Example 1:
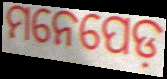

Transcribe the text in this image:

ମନେପେଡ଼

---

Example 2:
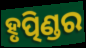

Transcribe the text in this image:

ହୃତ୍ପିଣ୍ଡର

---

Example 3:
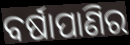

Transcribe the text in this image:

ବର୍ଷାପାଣିର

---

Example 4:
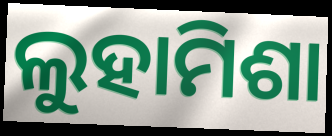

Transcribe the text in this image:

ଲୁହାମିଶା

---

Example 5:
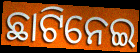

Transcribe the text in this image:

ଛାଟିନେଇ